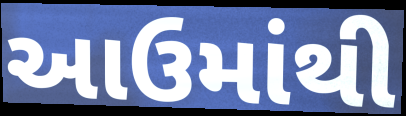
આઉમાંથી